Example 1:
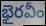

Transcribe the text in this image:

భైరవీం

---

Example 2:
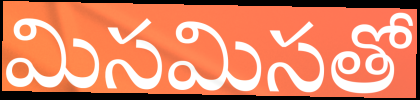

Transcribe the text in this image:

మిసమిసతో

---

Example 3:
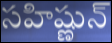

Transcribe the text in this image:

సహిష్ణున్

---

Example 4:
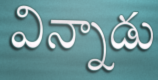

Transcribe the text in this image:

విన్నాడు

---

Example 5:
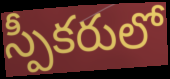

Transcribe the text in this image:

స్పీకరులో